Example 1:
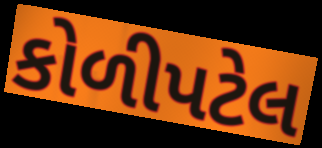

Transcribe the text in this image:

કોળીપટેલ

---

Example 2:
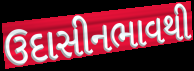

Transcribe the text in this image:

ઉદાસીનભાવથી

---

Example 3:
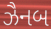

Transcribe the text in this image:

ઝૈનબ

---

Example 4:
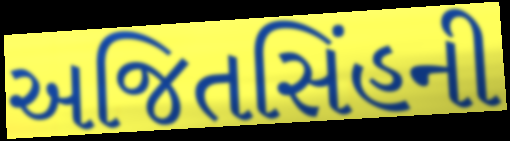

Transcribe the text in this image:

અજિતસિંહની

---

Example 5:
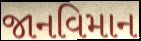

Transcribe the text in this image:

જાનવિમાન